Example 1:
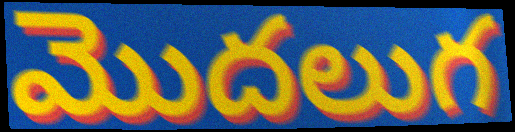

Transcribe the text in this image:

మొదలుగ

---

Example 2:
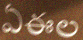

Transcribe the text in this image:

ఏఈల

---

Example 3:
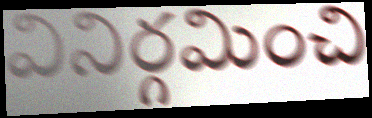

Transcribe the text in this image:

వినిర్గమించి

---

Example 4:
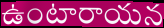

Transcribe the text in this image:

ఉంటారాయన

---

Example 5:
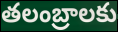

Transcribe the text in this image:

తలంబ్రాలకు